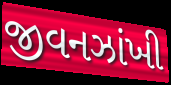
જીવનઝાંખી